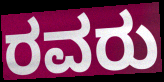
ರವರು